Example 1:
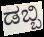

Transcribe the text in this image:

ಡಬ್ಬಿ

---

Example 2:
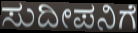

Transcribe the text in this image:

ಸುದೀಪನಿಗೆ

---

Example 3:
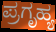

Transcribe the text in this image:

ಪ್ರಗೃಹ್ಯ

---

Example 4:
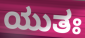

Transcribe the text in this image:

ಯುತಃ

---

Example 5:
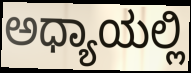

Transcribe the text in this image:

ಅಧ್ಯಾಯಲ್ಲಿ